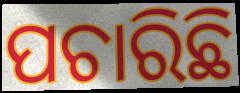
ପଚାରିଛି